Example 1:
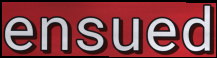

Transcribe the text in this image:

ensued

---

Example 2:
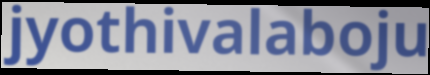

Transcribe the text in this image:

jyothivalaboju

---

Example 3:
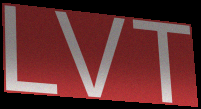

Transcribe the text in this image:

LVT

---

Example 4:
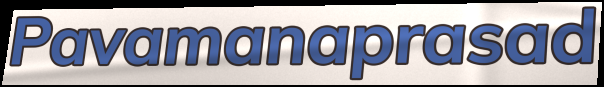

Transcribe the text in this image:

Pavamanaprasad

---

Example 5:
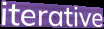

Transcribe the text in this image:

iterative